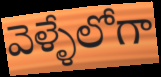
వెళ్ళేలోగా